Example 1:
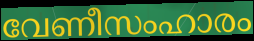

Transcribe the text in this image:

വേണീസംഹാരം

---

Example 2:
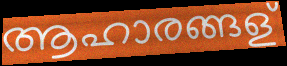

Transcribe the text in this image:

ആഹാരങ്ങള്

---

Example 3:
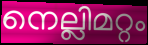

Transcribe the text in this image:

നെല്ലിമറ്റം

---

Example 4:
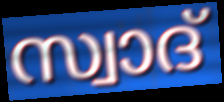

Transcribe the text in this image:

സ്വാദ്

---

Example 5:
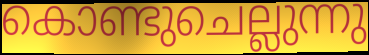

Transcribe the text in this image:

കൊണ്ടുചെല്ലുന്നു